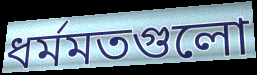
ধর্মমতগুলো